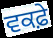
ਵਕਫ਼ੇ